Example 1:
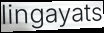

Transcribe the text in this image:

lingayats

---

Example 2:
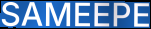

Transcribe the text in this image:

SAMEEPE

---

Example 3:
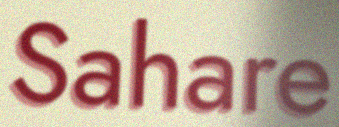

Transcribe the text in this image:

Sahare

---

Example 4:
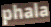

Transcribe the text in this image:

phala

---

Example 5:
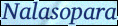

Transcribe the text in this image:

Nalasopara